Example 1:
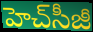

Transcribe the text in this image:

హెచ్‌సీజీ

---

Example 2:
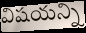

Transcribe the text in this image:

విషయన్ని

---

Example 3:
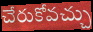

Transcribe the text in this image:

చేరుకోవచ్చు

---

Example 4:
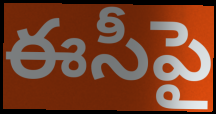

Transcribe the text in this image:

ఈసీపై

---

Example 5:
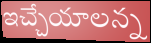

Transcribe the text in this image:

ఇచ్చేయాలన్న